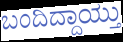
ಬಂದಿದ್ದಾಯ್ತು